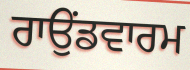
ਰਾਉਂਡਵਾਰਮ